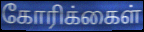
கோரிக்கைள்